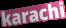
karachi